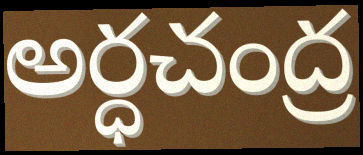
అర్ధచంద్ర